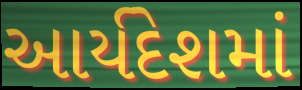
આર્યદેશમાં